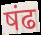
षंढ